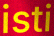
isti